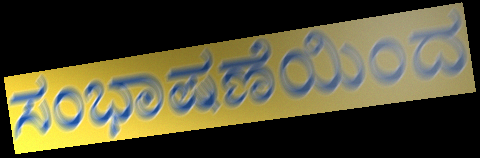
ಸಂಭಾಷಣೆಯಿಂದ